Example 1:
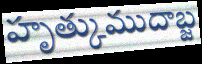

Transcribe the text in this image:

హృత్కుముదాబ్జ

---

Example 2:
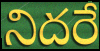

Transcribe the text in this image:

నిదరే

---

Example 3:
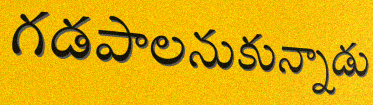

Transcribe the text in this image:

గడపాలనుకున్నాడు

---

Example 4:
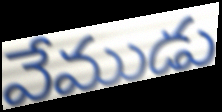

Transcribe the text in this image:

వేముడు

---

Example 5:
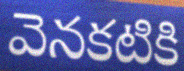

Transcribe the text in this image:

వెనకటికి